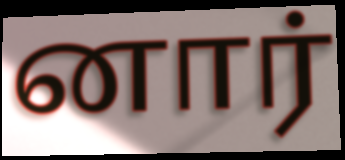
னார்